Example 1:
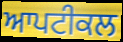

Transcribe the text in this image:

ਆਪਟੀਕਲ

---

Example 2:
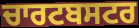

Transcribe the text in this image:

ਚਾਰਟਬਸਟਰ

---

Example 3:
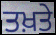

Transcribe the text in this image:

ਤਖ਼ਤੇ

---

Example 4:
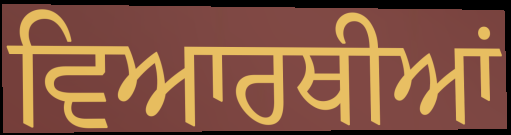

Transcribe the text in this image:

ਵਿਆਰਥੀਆਂ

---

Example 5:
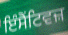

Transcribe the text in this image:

ਇੰਸੈਂਟਿਵਜ਼